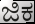
ಜಿಕ